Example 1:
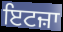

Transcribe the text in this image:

ਇਟਜ਼ਾ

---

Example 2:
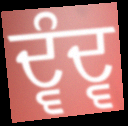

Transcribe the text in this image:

ਦ੍ਵੰਦ੍ਵ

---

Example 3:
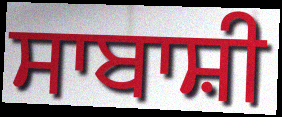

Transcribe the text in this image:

ਸਾਬਾਸ਼ੀ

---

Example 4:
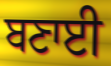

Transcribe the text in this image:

ਬਣਾਈ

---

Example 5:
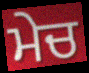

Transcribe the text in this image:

ਮੇਚ